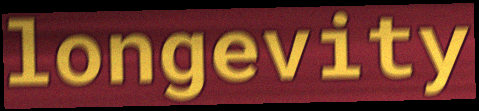
longevity